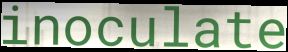
inoculate